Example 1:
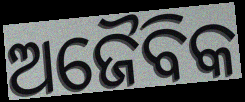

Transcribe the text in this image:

ଅଜୈବିକ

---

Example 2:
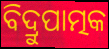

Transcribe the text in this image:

ବିଦ୍ରୁପାତ୍ମକ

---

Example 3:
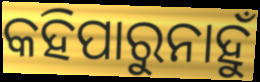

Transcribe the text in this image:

କହିପାରୁନାହୁଁ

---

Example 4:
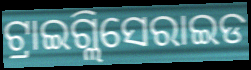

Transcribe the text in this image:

ଟ୍ରାଇଗ୍ଲିସେରାଇଡ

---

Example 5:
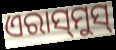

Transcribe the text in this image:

ଏରାସ୍‍ମୁସ୍